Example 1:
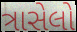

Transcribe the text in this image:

ત્રાસેલો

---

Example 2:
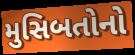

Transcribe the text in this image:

મુસિબતોનો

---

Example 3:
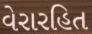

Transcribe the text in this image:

વેરારહિત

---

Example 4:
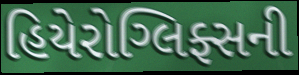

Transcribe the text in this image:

હિયેરોગ્લિફ્સની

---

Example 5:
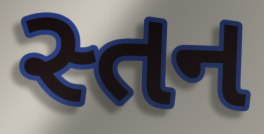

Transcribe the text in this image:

સ્તન